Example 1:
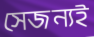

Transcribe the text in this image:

সেজন্যই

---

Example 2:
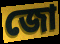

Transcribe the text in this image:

জো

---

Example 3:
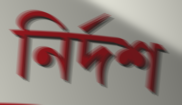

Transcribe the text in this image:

নির্দশ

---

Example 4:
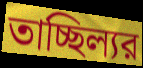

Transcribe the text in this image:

তাচ্ছিল্যর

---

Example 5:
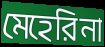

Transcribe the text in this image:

মেহেরিনা